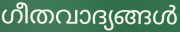
ഗീതവാദ്യങ്ങൾ